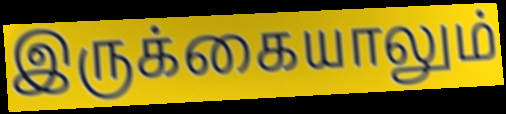
இருக்கையாலும்